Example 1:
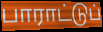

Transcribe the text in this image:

பாராட்டுப்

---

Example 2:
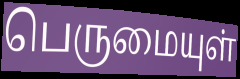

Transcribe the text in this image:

பெருமையுள்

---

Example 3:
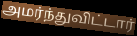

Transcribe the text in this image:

அமர்ந்துவிட்டார்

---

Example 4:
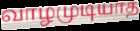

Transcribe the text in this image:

வாழமுடியாத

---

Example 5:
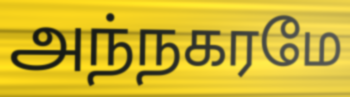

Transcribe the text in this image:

அந்நகரமே